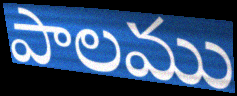
పాలము